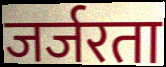
जर्जरता